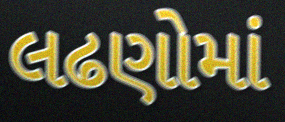
લઢણોમાં